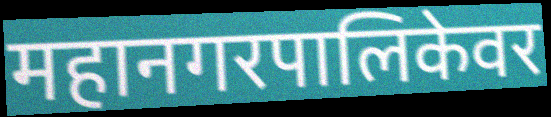
महानगरपालिकेवर